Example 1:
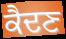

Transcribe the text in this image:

ਕੈਦਣ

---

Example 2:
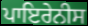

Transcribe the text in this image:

ਪਾਇਰੇਨੀਸ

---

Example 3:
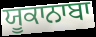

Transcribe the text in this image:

ਯੂਕਾਨਾਬਾ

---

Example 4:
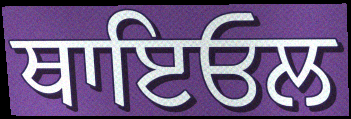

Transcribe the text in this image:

ਥਾਇਓਲ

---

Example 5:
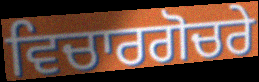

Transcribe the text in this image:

ਵਿਚਾਰਗੋਚਰੇ